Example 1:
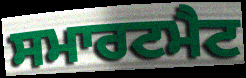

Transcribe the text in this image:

ਸਮਾਰਟਮੈਟ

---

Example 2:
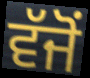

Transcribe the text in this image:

ਵੱਜੋਂ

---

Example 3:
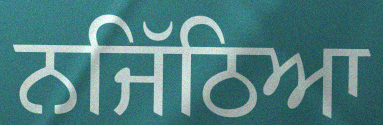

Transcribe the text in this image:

ਨਜਿੱਠਿਆ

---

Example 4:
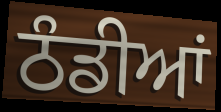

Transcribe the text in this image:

ਠੰਡੀਆਂ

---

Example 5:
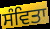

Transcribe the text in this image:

ਸੰਵਿਤਾ